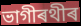
ভাগীৰথীৰ